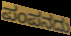
ಪಂಪನದು